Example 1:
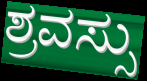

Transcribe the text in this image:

ಶ್ರವಸ್ಸು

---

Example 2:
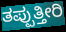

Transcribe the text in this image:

ತಪ್ಪುತ್ತೀರಿ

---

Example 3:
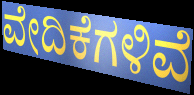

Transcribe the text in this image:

ವೇದಿಕೆಗಳಿವೆ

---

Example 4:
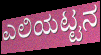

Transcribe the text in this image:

ಎಲಿಯಟ್ಟನ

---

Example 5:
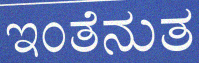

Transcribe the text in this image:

ಇಂತೆನುತ